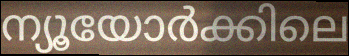
ന്യൂയോർക്കിലെ